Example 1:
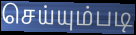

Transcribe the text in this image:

செய்யும்படி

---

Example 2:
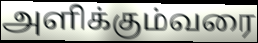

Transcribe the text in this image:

அளிக்கும்வரை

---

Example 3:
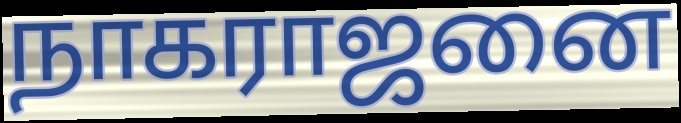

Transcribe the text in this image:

நாகராஜனை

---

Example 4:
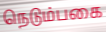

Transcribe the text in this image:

நெடும்பகை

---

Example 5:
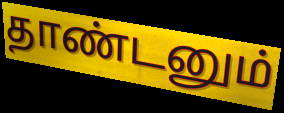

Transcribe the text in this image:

தாண்டனும்